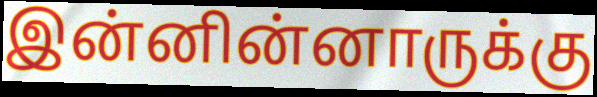
இன்னின்னாருக்கு